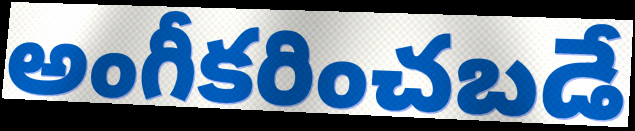
అంగీకరించబడే